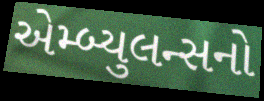
એમ્બ્યુલન્સનો